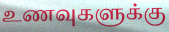
உணவுகளுக்கு